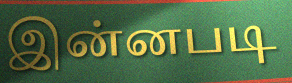
இன்னபடி